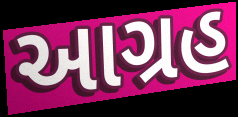
આગ્રહ